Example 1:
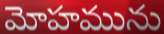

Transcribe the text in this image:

మోహమును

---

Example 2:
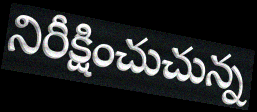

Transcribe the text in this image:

నిరీక్షించుచున్న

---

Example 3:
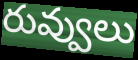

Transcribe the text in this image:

రువ్వులు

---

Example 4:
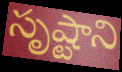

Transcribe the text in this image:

సృష్టాని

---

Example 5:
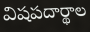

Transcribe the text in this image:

విషపదార్థాల